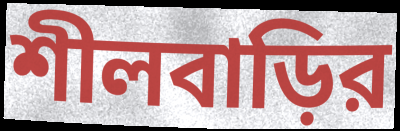
শীলবাড়ির